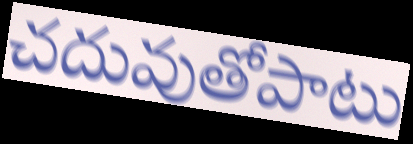
చదువుతోపాటు